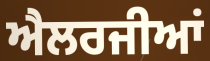
ਐਲਰਜੀਆਂ